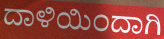
ದಾಳಿಯಿಂದಾಗಿ